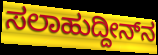
ಸಲಾಹುದ್ದೀನ್‍ನ